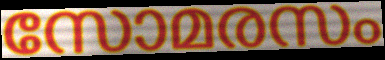
സോമരസം